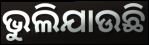
ଭୁଲିଯାଉଛି